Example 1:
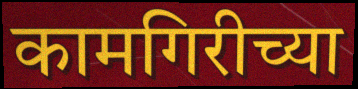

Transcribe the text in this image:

कामगिरीच्या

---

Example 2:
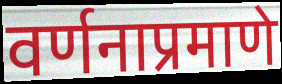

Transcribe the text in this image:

वर्णनाप्रमाणे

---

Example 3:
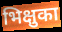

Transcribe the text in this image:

भिक्षुका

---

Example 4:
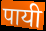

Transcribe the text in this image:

पायी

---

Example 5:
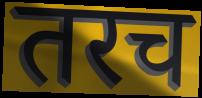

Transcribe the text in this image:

तरच